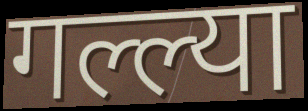
गल्ल्या